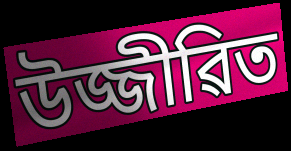
উজ্জীৱিত